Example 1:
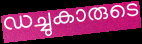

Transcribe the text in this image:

ഡച്ചുകാരുടെ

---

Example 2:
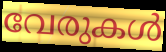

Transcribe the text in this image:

വേരുകൾ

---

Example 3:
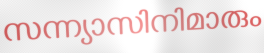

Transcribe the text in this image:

സന്ന്യാസിനിമാരും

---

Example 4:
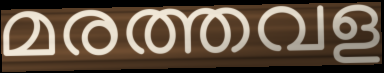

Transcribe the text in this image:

മരത്തവള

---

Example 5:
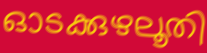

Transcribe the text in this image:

ഓടക്കുഴലൂതി